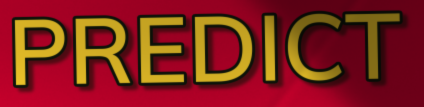
PREDICT